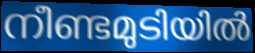
നീണ്ടമുടിയിൽ